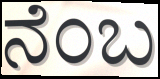
ನೆಂಬ